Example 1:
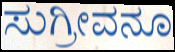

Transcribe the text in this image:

ಸುಗ್ರೀವನೂ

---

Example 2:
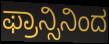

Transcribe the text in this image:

ಫ್ರಾನ್ಸಿನಿಂದ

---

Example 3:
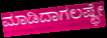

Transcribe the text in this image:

ಮಾಡಿದಾಗಲಷ್ಟೇ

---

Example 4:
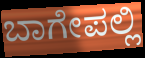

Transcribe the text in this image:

ಬಾಗೇಪಲ್ಲಿ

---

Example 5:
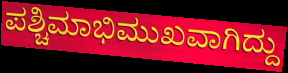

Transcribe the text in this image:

ಪಶ್ಚಿಮಾಭಿಮುಖವಾಗಿದ್ದು